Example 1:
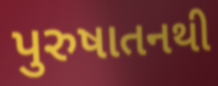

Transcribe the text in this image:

પુરુષાતનથી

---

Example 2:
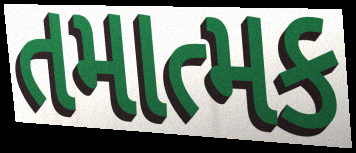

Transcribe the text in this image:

તમાત્મક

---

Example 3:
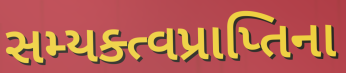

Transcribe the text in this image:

સમ્યક્ત્વપ્રાપ્તિના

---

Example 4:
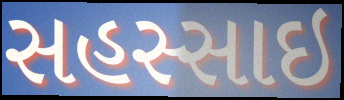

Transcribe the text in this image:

સહસ્સાઇ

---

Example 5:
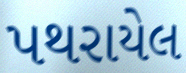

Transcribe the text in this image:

પથરાયેલ